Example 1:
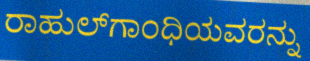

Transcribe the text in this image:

ರಾಹುಲ್‌ಗಾಂಧಿಯವರನ್ನು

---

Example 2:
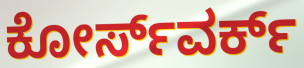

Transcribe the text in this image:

ಕೋರ್ಸ್‌ವರ್ಕ್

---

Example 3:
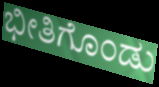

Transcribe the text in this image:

ಭೀತಿಗೊಂಡು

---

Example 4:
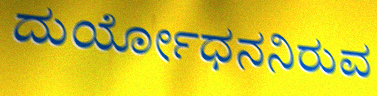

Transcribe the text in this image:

ದುರ್ಯೋಧನನಿರುವ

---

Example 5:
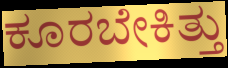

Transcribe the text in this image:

ಕೂರಬೇಕಿತ್ತು